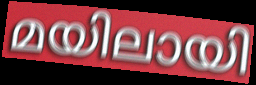
മയിലായി